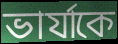
ভার্যাকে